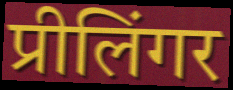
प्रीलिंगर